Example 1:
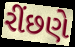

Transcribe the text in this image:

રીંછણે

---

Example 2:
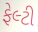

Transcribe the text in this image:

ફેલ્ટી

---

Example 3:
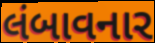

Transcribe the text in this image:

લંબાવનાર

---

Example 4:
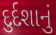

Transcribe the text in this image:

દુર્દશાનું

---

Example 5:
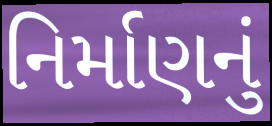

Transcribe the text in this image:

નિર્માણનું